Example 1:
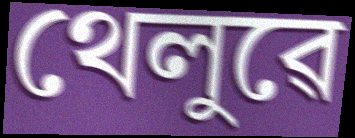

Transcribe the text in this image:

থেলুৱে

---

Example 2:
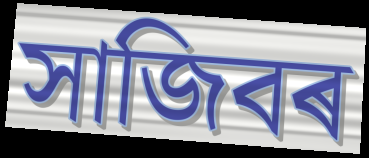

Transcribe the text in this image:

সাজিবৰ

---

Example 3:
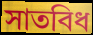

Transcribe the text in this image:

সাতবিধ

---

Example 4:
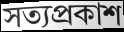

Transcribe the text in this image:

সত্যপ্ৰকাশ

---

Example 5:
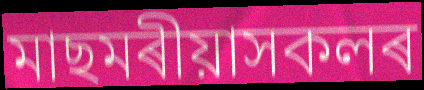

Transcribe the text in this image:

মাছমৰীয়াসকলৰ